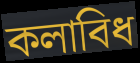
কলাবিধ